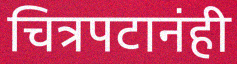
चित्रपटानंही